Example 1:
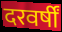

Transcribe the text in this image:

दरवर्षीं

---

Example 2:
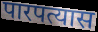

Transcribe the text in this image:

पारपत्यास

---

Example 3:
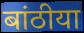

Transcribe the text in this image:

बांठीया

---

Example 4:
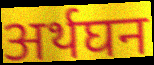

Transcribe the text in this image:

अर्थघन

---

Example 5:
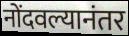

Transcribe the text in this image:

नोंदवल्यानंतर